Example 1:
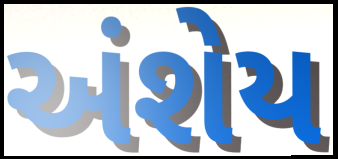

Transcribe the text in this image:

અંશેય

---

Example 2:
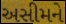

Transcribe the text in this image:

અસીમને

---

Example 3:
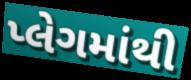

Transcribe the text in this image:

પ્લેગમાંથી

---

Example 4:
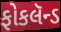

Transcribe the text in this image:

ફોકલૅન્ડ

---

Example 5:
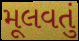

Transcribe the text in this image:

મૂલવતું